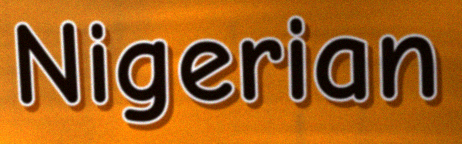
Nigerian